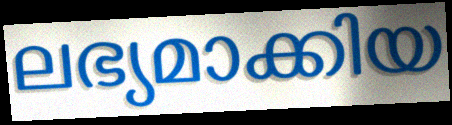
ലഭ്യമാക്കിയ